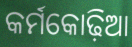
କର୍ମକୋଢ଼ିଆ